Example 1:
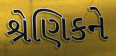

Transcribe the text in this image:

શ્રેણિકને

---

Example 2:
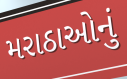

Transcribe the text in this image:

મરાઠાઓનું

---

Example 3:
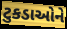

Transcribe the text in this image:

ટુકડાઓને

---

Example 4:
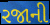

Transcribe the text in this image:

રજાની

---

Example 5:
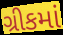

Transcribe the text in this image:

ગ્રીકમાં